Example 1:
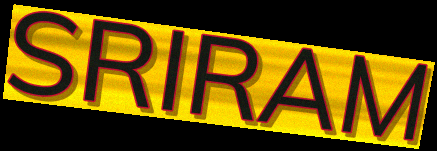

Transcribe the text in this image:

SRIRAM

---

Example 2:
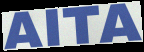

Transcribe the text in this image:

AITA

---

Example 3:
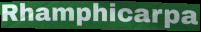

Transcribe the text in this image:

Rhamphicarpa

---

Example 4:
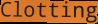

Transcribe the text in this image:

Clotting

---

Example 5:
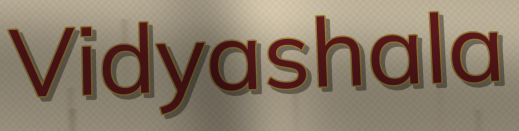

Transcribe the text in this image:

Vidyashala